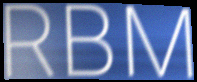
RBM